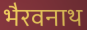
भैरवनाथ